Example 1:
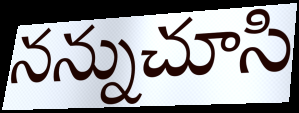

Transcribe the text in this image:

నన్నుచూసి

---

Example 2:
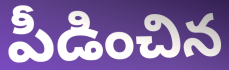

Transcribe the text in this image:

పీడించిన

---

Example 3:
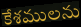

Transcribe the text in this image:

కేశములను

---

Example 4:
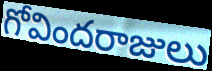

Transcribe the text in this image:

గోవిందరాజులు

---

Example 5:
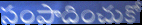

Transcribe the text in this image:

సంపాదించుకో